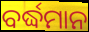
ବର୍ଦ୍ଧମାନ